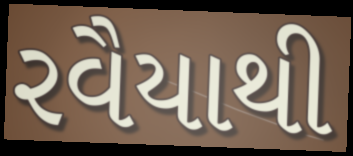
રવૈયાથી